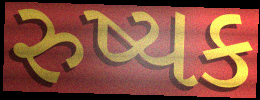
રુષ્યક